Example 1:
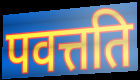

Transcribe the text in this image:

पवत्तति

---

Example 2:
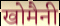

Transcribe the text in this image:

खोमैनी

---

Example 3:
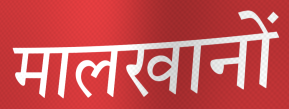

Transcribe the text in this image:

मालखानों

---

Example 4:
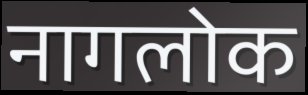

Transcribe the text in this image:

नागलोक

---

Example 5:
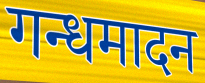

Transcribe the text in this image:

गन्धमादन